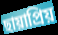
ছায়াপ্রিয়